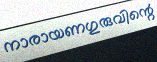
നാരായണഗുരുവിന്റെ